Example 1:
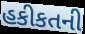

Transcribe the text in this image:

હકીકતની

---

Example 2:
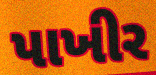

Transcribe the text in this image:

પાખીર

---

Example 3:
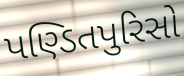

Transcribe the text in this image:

પણ્ડિતપુરિસો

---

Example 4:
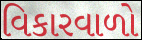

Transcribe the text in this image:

વિકારવાળો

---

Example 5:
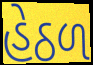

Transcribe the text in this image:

હેઠળ